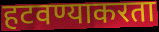
हटवण्याकरता